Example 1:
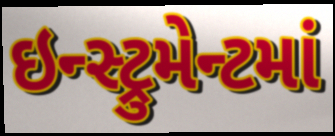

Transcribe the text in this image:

ઇન્સ્ટ્રુમેન્ટમાં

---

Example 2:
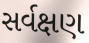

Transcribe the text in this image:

સર્વક્ષણ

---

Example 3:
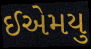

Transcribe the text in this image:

ઈએમયુ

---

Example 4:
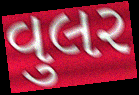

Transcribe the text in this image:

વુલર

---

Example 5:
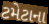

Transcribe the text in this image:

ટમેટાના